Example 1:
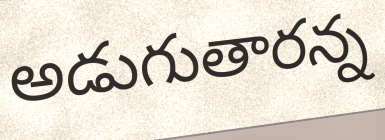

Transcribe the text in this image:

అడుగుతారన్న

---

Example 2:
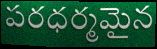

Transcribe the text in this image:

పరధర్మమైన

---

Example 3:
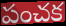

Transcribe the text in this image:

పంచక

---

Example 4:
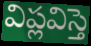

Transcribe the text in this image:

విప్లవిస్తె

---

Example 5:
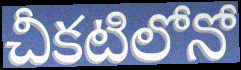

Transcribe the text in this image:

చీకటిలోనో